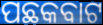
ପଛକବାଟ